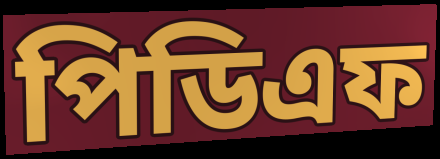
পিডিএফ